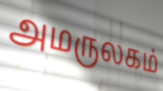
அமருலகம்